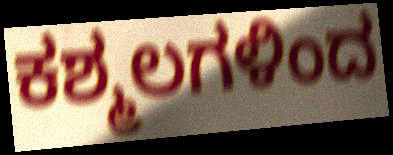
ಕಶ್ಮಲಗಳಿಂದ